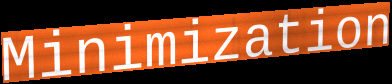
Minimization